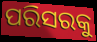
ପରିସରକୁ